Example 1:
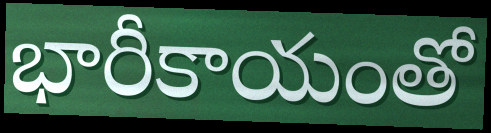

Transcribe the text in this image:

భారీకాయంతో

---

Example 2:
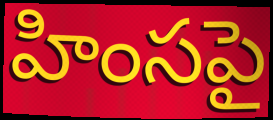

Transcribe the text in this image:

హింసపై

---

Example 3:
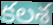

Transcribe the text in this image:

కలశ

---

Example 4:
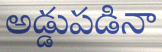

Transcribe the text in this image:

అడ్డుపడినా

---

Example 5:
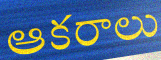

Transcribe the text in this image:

ఆకరాలు